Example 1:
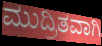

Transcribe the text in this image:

ಮುದ್ರಿತವಾಗಿ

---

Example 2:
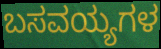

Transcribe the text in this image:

ಬಸವಯ್ಯಗಳ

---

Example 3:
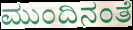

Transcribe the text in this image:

ಮುಂದಿನಂತೆ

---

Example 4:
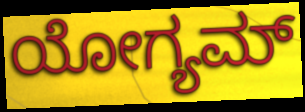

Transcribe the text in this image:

ಯೋಗ್ಯಮ್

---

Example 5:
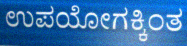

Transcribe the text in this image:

ಉಪಯೋಗಕ್ಕಿಂತ